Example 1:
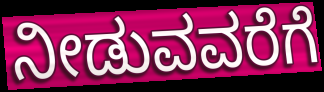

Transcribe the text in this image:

ನೀಡುವವರೆಗೆ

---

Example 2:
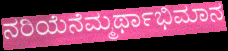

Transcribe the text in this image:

ನರಿಯೆನೆಮ್ಮರ್ಥಾಭಿಮಾನ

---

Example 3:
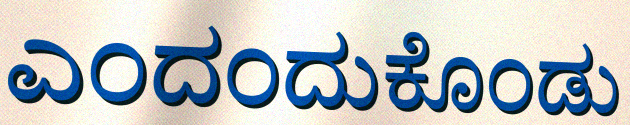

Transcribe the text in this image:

ಎಂದಂದುಕೊಂಡು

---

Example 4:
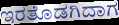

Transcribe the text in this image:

ಇರತೊಡಗಿದಾಗ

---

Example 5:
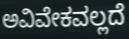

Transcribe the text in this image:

ಅವಿವೇಕವಲ್ಲದೆ